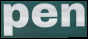
pen